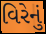
વિરેનું